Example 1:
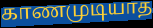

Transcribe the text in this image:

காணமுடியாத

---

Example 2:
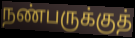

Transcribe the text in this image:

நண்பருக்குத்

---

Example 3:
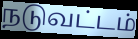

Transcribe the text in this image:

நடுவட்டம்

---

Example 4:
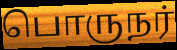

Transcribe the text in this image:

பொருநர்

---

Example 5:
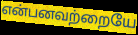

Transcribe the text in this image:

என்பனவற்றையே